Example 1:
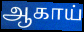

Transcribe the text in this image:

ஆகாய்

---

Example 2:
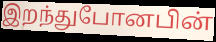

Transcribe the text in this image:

இறந்துபோனபின்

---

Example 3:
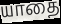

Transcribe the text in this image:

யாதை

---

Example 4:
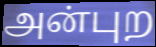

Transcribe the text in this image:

அன்புற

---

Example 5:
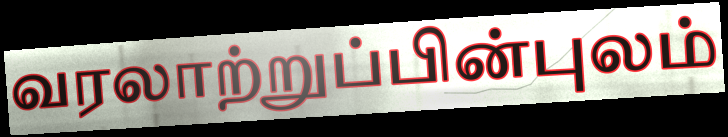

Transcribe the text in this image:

வரலாற்றுப்பின்புலம்